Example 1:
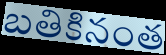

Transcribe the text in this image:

బతికినంత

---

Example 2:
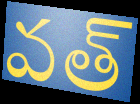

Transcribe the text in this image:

వత్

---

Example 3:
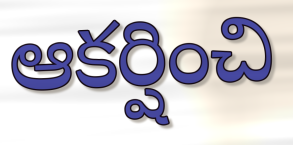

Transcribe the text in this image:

ఆకర్షించి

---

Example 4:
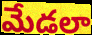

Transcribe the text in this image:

మేడలా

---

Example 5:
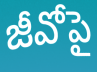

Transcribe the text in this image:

జీవోపై